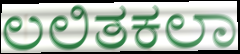
ಲಲಿತಕಲಾ